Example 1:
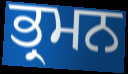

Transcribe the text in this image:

ਭ੍ਰਮਨ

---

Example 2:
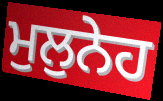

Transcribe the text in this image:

ਮੁਲੁਨੇਹ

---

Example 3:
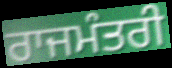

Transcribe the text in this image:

ਰਾਜਮੰਤਰੀ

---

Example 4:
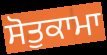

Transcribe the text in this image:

ਸੋਤੁਕਾਮਾ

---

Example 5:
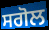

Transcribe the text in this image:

ਸਗੋਲ